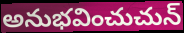
అనుభవించుచున్